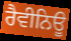
ਰੈਵੀਨਿਊ